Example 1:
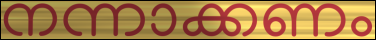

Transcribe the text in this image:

നന്നാക്കണം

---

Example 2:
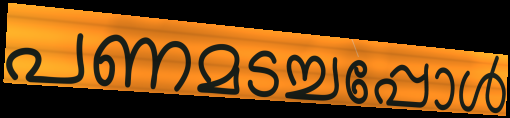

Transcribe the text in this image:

പണമടച്ചപ്പോൾ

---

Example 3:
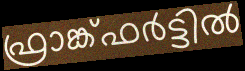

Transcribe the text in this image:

ഫ്രാങ്ക്ഫർട്ടിൽ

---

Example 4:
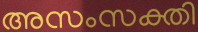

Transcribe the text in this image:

അസംസക്തി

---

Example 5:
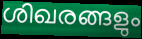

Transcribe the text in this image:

ശിഖരങ്ങളും